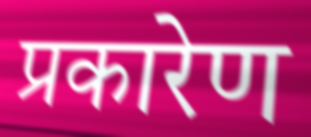
प्रकारेण